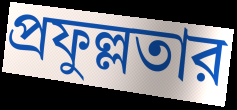
প্রফুল্লতার